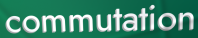
commutation